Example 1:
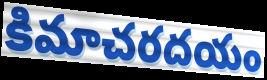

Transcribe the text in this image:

కిమాచరదయం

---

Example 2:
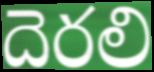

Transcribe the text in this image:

దెరలి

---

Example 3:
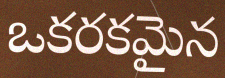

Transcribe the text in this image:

ఒకరకమైన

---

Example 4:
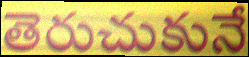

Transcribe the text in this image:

తెరుచుకునే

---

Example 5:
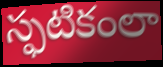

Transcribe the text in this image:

స్ఫటికంలా